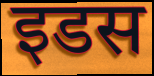
इडस